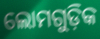
ଲୋମଗୁଡ଼ିକ